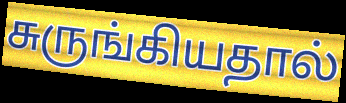
சுருங்கியதால்